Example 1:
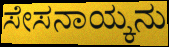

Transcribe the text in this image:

ಸೇಸನಾಯ್ಕನು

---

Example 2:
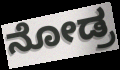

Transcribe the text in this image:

ನೋಡ್ರ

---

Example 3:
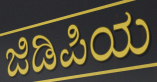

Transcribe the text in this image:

ಜಿಡಿಪಿಯ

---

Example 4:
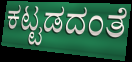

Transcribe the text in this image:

ಕಟ್ಟಡದಂತೆ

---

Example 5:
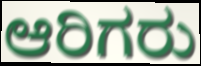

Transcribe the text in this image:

ಆರಿಗರು